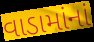
વાડામાંનાં